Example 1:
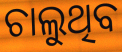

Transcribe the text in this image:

ଚାଲୁଥିବ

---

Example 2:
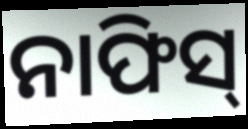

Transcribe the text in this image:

ନାଫିସ୍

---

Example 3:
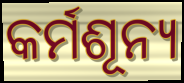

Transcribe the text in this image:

କର୍ମଶୂନ୍ୟ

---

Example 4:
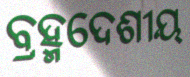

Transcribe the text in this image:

ବ୍ରହ୍ମଦେଶୀୟ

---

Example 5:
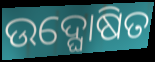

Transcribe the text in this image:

ଉଦ୍ଘୋଷିତ